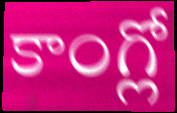
కాంగ్లో